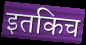
इतकिच